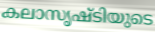
കലാസൃഷ്ടിയുടെ